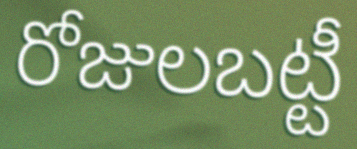
రోజులబట్టీ